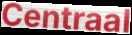
Centraal